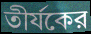
তীর্যকের